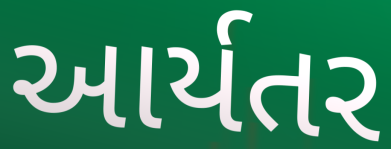
આર્યતર